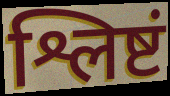
श्लिष्टं